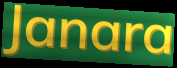
Janara